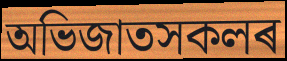
অভিজাতসকলৰ